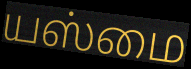
யஸ்மை